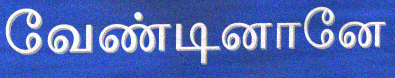
வேண்டினானே